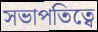
সভাপতিত্বে